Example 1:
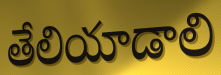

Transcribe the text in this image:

తేలియాడాలి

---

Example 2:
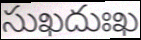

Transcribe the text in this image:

సుఖదుఃఖ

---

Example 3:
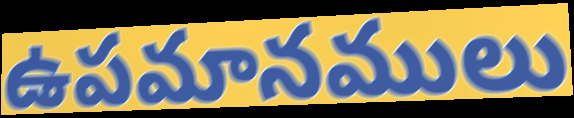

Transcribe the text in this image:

ఉపమానములు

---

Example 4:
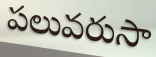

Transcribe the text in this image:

పలువరుసా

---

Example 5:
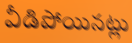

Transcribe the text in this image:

వీడిపోయినట్లు